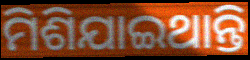
ମିଶିଯାଇଥାନ୍ତି